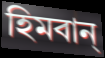
হিমবান্